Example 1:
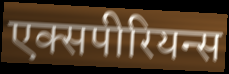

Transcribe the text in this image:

एक्सपीरियन्स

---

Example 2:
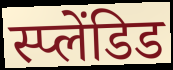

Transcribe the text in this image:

स्प्लेंडिड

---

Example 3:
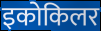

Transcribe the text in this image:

इकोकिलर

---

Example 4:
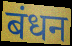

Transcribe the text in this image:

बंधन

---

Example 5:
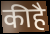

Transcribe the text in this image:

कीहै